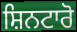
ਸ਼ਿਨਟਾਰੋ